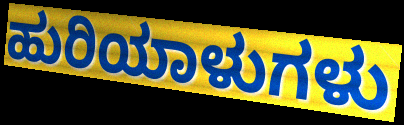
ಹುರಿಯಾಳುಗಳು